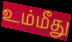
உம்மீது